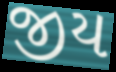
જીય